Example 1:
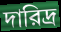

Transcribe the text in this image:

দারিদ্র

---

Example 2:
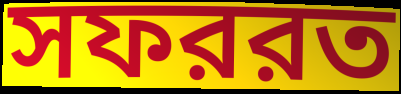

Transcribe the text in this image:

সফররত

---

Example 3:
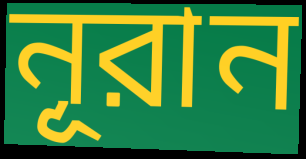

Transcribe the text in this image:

নূরান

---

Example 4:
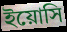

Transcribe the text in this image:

ইয়োসি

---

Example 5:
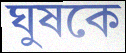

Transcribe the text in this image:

ঘুষকে